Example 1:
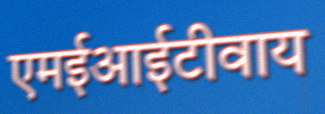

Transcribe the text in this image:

एमईआईटीवाय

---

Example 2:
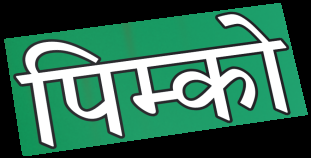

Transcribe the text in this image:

पिम्को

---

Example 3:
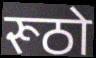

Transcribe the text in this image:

रूठो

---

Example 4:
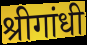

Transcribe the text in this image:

श्रीगांधी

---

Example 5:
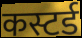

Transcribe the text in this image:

कस्टर्ड